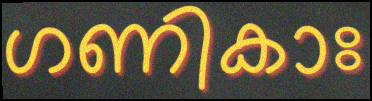
ഗണികാഃ